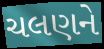
ચલણને